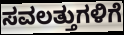
ಸವಲತ್ತುಗಳಿಗೆ